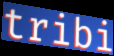
tribi